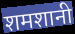
शमशानी